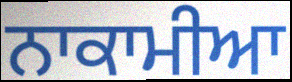
ਨਾਕਾਮੀਆ